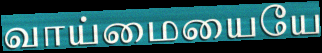
வாய்மையையே